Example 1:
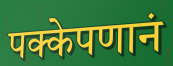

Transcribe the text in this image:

पक्केपणानं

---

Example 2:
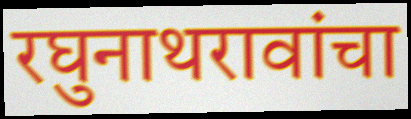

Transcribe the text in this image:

रघुनाथरावांचा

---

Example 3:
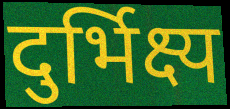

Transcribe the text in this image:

दुर्भिक्ष्य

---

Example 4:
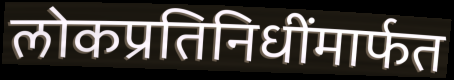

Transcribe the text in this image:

लोकप्रतिनिधींमार्फत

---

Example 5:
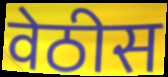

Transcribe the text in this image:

वेठीस